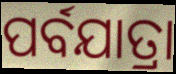
ପର୍ବଯାତ୍ରା